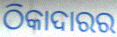
ଠିକାଦାରର